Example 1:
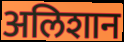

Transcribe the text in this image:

अलिशान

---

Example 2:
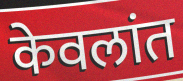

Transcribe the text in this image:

केवलांत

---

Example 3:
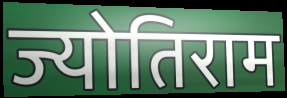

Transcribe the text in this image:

ज्योतिराम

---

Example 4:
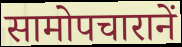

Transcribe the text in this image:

सामोपचारानें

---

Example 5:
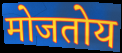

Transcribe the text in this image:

मोजतोय